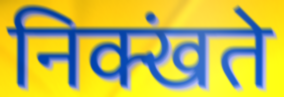
निक्खंते